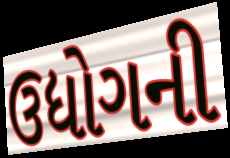
ઉદ્યોગની